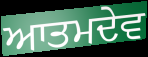
ਆਤਮਦੇਵ